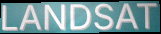
LANDSAT